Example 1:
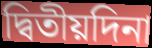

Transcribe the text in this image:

দ্বিতীয়দিনা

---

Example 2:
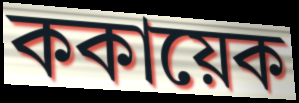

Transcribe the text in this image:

ককায়েক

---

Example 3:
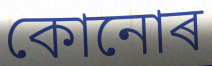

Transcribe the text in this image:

কোনোৰ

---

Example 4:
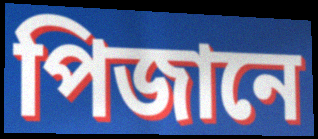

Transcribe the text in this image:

পিজানে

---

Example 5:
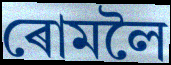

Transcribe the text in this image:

ৰোমলৈ